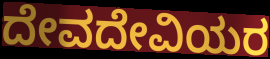
ದೇವದೇವಿಯರ